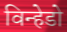
विन्हेडो